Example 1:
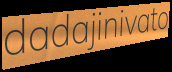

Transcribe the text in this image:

dadajinivato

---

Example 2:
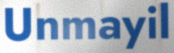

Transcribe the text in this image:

Unmayil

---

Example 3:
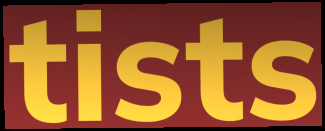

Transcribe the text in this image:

tists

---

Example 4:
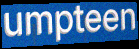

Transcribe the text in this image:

umpteen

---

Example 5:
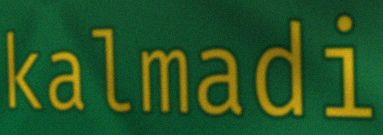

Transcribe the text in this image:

kalmadi